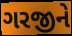
ગરજીને